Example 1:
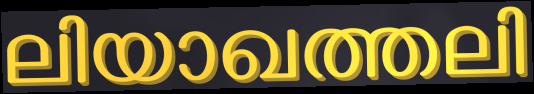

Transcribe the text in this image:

ലിയാഖത്തലി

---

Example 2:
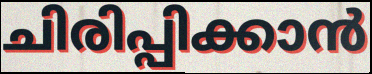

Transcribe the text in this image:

ചിരിപ്പിക്കാൻ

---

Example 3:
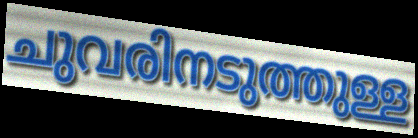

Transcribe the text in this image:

ചുവരിനടുത്തുള്ള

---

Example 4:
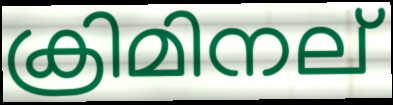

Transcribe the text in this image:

ക്രിമിനല്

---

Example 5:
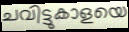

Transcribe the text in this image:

ചവിട്ടുകാളയെ